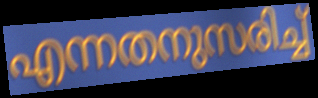
എന്നതനുസരിച്ച്